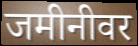
जमीनीवर